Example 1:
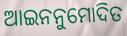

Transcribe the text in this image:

ଆଇନନୁମୋଦିତ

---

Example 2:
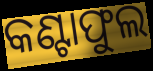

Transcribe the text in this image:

କଣ୍ଟାଫୁଲ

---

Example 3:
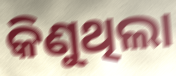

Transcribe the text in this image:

କିଣୁଥିଲା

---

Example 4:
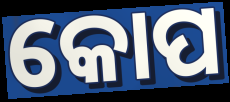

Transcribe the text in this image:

କୋପ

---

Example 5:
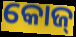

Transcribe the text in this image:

କୋଜ୍